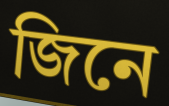
জিনে